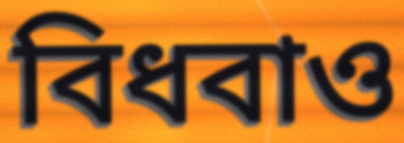
বিধবাও